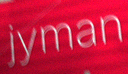
jyman